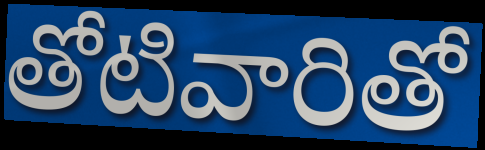
తోటివారితో